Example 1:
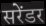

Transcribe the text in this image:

सरेंडर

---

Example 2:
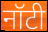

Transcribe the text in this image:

नॉटी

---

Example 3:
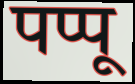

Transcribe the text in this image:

पप्पू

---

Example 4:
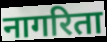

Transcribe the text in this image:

नागरिता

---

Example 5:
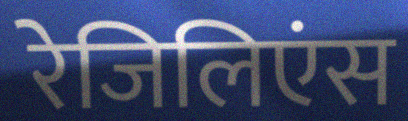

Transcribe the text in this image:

रेजिलिएंस